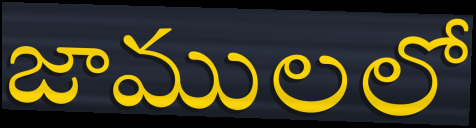
జాములలో